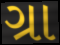
ગ્રા